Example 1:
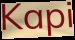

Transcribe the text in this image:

Kapi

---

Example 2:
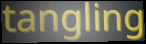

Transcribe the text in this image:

tangling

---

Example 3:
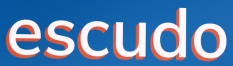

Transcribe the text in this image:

escudo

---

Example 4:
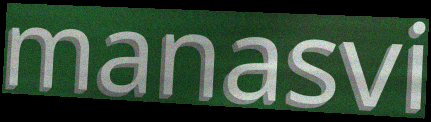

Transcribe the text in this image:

manasvi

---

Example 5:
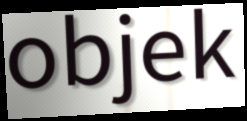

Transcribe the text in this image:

objek